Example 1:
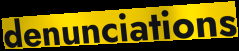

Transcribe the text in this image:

denunciations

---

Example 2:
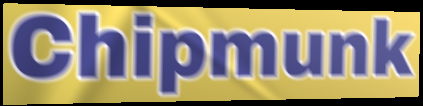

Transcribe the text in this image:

Chipmunk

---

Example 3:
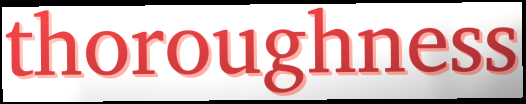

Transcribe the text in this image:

thoroughness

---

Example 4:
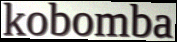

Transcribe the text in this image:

kobomba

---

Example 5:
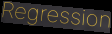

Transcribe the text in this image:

Regression